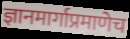
ज्ञानमार्गाप्रमाणेच